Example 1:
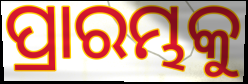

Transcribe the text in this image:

ପ୍ରାରମ୍ଭକୁ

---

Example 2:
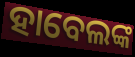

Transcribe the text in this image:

ହାବେଲଙ୍କ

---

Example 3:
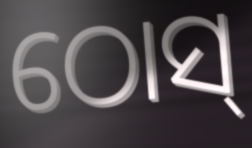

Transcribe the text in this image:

ଠୋସ୍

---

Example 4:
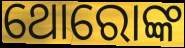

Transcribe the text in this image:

ଥୋରୋଙ୍କ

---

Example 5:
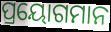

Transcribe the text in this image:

ପ୍ରୟୋଗମାନ